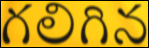
గలిగిన